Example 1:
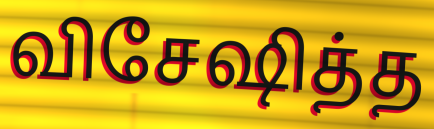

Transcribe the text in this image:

விசேஷித்த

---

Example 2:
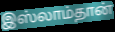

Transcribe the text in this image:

இஸ்லாம்தான்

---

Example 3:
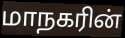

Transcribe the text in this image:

மாநகரின்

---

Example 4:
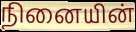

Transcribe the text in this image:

நினையின்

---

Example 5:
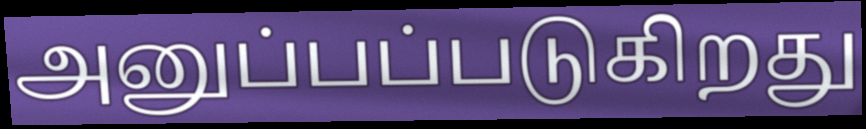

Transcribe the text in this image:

அனுப்பப்படுகிறது